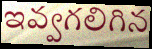
ఇవ్వగలిగిన